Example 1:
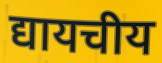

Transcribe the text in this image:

द्यायचीय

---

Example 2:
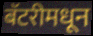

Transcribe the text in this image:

बॅटरीमधून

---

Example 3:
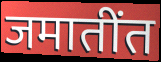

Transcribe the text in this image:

जमातींत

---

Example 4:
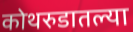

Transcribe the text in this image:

कोथरुडातल्या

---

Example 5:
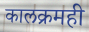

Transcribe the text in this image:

कालक्रमही